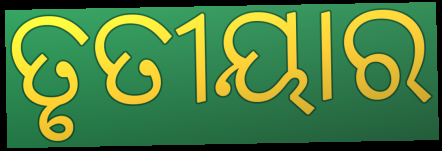
ତୃତୀୟାର